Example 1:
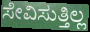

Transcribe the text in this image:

ಸೇವಿಸುತ್ತಿಲ್ಲ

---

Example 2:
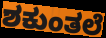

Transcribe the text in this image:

ಶಕುಂತಲೆ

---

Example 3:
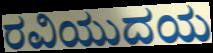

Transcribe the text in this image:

ರವಿಯುದಯ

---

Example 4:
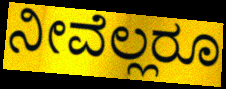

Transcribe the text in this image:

ನೀವೆಲ್ಲರೂ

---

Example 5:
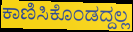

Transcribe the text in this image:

ಕಾಣಿಸಿಕೊಂಡದ್ದಲ್ಲ